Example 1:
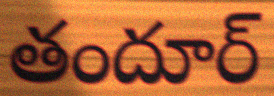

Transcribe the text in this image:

తందూర్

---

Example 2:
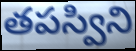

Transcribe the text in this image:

తపస్విని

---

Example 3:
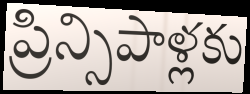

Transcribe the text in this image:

ప్రిన్సిపాళ్లకు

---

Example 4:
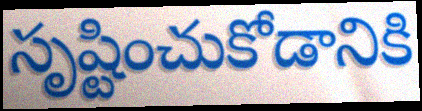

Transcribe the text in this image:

సృష్టించుకోడానికి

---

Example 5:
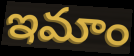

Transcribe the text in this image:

ఇమాం